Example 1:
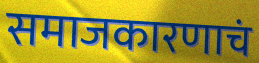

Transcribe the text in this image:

समाजकारणाचं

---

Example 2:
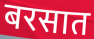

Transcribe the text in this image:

बरसात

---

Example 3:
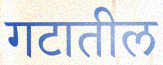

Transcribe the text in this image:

गटातील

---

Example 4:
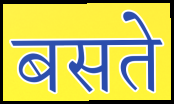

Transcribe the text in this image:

बसते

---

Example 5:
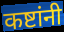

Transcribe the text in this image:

कष्टांनी